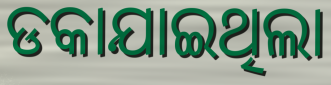
ଡକାଯାଇଥିଲା